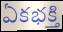
ఏకభక్తి